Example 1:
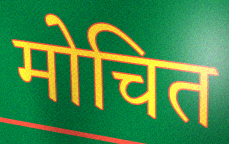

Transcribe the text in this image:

मोचित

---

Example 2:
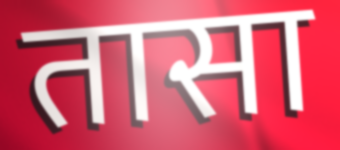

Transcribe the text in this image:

तासा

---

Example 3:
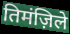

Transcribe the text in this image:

तिमंज़िले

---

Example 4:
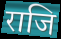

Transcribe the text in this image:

राजि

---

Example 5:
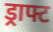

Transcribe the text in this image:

ड्राफ्ट